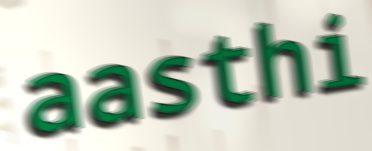
aasthi